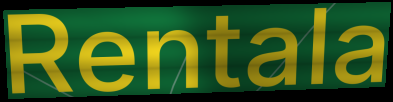
Rentala